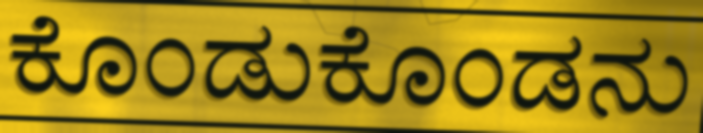
ಕೊಂಡುಕೊಂಡನು